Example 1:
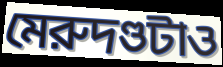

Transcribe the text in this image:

মেরুদণ্ডটাও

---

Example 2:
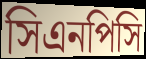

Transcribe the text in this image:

সিএনপিসি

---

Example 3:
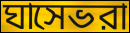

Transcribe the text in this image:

ঘাসেভরা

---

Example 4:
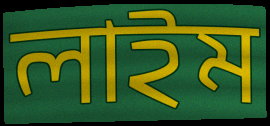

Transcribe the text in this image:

লাইম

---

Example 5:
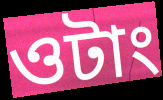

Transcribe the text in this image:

ওটাং